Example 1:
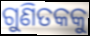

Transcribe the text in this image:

ଗୁଣିତକକୁ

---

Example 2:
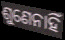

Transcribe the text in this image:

ଶୁଣେନାହିଁ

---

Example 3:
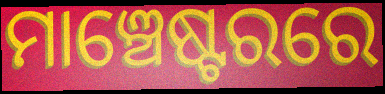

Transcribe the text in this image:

ମାଞ୍ଚେଷ୍ଟରରେ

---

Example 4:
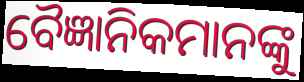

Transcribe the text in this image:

ବୈଜ୍ଞାନିକମାନଙ୍କୁ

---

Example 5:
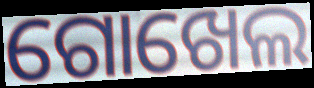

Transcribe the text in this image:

ଗୋଖେଲ